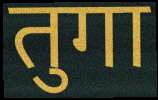
तुगा